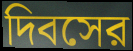
দিবসের